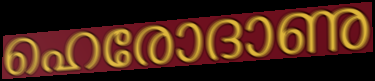
ഹെരോദാണു